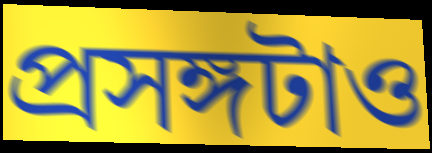
প্রসঙ্গটাও